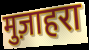
मुज़ाहरा